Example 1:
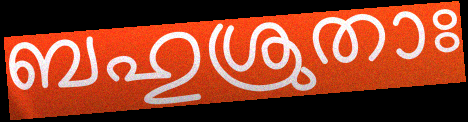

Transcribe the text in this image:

ബഹുശ്രുതാഃ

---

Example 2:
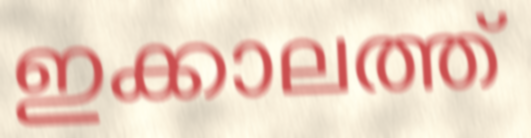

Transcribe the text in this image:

ഇക്കാലത്ത്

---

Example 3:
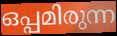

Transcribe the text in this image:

ഒപ്പമിരുന്ന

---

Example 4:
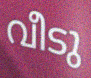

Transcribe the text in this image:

വീടു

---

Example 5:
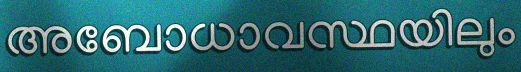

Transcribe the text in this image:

അബോധാവസ്ഥയിലും